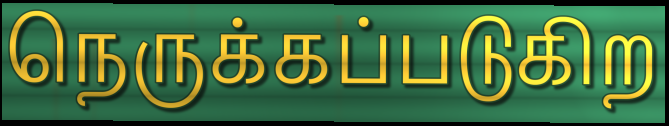
நெருக்கப்படுகிற